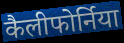
कैलीफोर्निया